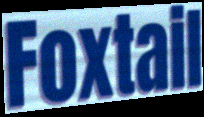
Foxtail